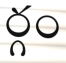
ర్గం